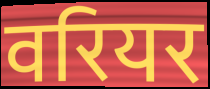
वरियर